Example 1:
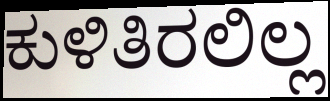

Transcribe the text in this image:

ಕುಳಿತಿರಲಿಲ್ಲ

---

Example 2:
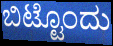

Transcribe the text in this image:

ಬಿಟ್ಟೊಂದು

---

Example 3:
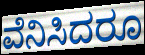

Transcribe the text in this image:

ವೆನಿಸಿದರೂ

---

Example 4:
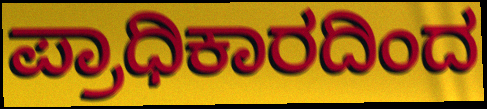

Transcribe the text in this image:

ಪ್ರಾಧಿಕಾರದಿಂದ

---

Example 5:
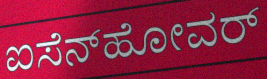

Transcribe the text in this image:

ಐಸೆನ್‍ಹೋವರ್